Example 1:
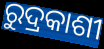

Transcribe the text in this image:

ରୁଦ୍ରକାଶୀ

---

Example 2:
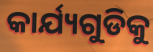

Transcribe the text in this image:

କାର୍ଯ୍ୟଗୁଡିକୁ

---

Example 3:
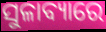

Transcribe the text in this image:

ସୁଳାବ୍ୟାରେ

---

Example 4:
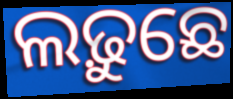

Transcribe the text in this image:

ଲଢ଼ୁଛେ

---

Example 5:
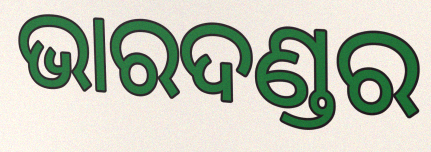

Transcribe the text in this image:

ଭାରଦଣ୍ଡର